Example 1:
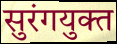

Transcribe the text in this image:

सुरंगयुक्त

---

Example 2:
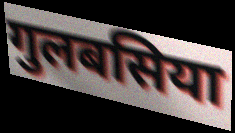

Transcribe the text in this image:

गुलबसिया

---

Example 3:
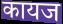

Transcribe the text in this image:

कायज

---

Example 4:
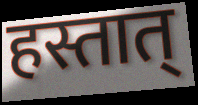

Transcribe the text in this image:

हस्तात्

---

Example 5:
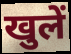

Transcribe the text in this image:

खुलें